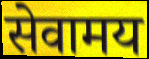
सेवामय